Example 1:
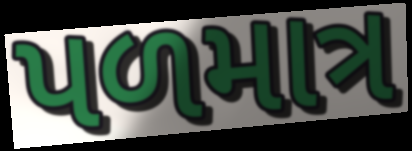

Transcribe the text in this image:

પળમાત્ર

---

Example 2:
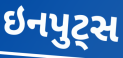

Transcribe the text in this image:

ઇનપુટ્સ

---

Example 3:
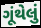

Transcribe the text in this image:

ગૂંથેલું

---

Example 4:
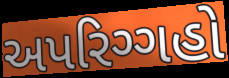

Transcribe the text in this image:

અપરિગ્ગહો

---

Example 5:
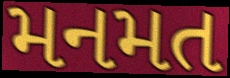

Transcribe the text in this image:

મનમત